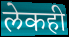
लेकही